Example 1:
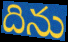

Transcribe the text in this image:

దిను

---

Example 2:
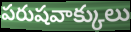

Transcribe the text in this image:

పరుషవాక్కులు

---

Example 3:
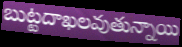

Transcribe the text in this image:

బుట్టదాఖలవుతున్నాయి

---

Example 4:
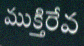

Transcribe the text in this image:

ముక్తిరేవ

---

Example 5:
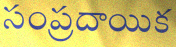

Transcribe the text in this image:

సంప్రదాయిక